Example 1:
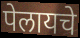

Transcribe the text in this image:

पेलायचे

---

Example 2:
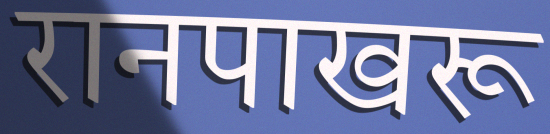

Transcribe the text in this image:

रानपाखरू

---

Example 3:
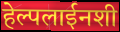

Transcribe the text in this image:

हेल्पलाईनशी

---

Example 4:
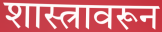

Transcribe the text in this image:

शास्त्रावरून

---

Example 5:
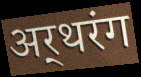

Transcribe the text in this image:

अर्थरंग